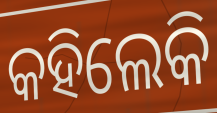
କହିଲେକି